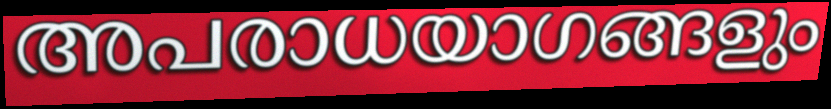
അപരാധയാഗങ്ങളും